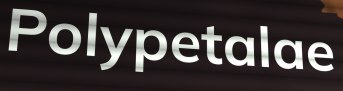
Polypetalae